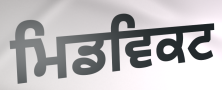
ਮਿਡਵਿਕਟ